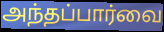
அந்தப்பார்வை